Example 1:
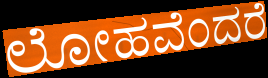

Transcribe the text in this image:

ಲೋಹವೆಂದರೆ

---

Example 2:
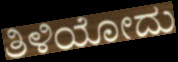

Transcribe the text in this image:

ತಿಳಿಯೋದು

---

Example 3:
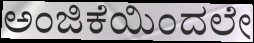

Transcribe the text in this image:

ಅಂಜಿಕೆಯಿಂದಲೇ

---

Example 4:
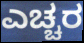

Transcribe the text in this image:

ಎಚ್ಚರ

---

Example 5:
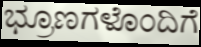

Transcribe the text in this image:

ಭ್ರೂಣಗಳೊಂದಿಗೆ